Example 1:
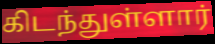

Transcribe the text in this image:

கிடந்துள்ளார்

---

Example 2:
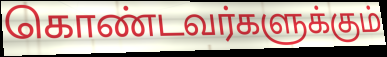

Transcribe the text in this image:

கொண்டவர்களுக்கும்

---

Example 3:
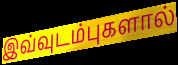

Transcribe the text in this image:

இவ்வுடம்புகளால்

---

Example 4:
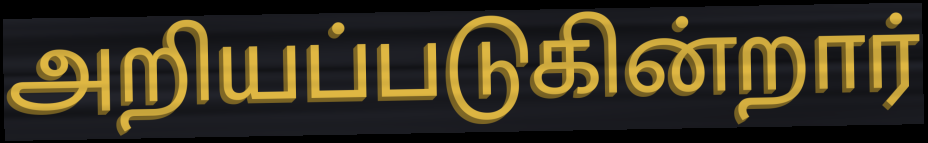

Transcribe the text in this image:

அறியப்படுகின்றார்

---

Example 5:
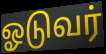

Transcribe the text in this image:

ஓடுவர்